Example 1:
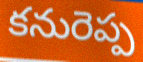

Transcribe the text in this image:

కనురెప్ప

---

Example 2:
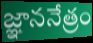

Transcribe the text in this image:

జ్ఞాననేత్రం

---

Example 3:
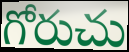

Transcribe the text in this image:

గోరుచు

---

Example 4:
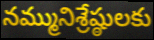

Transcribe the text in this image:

నమ్మునిశ్రేష్ఠులకు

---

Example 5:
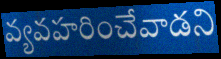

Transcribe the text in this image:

వ్యవహరించేవాడని